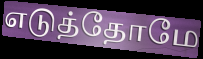
எடுத்தோமே